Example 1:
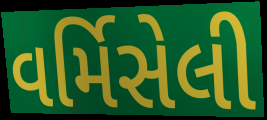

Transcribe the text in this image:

વર્મિસેલી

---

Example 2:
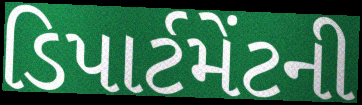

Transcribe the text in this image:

ડિપાર્ટમેંટની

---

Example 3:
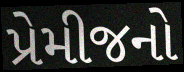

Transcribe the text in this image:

પ્રેમીજનો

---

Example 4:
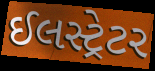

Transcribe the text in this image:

ઈલસ્ટ્રેટર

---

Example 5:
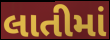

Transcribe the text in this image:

લાતીમાં